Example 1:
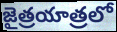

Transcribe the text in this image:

జైత్రయాత్రలో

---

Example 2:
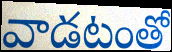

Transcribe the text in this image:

వాడటంతో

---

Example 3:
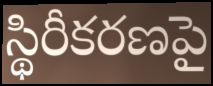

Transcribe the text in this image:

స్థిరీకరణపై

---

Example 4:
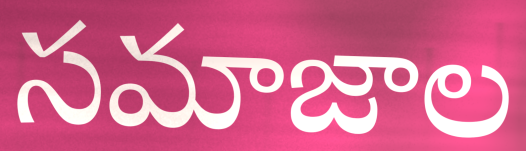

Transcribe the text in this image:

సమాజాల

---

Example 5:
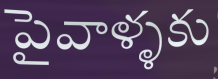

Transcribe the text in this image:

పైవాళ్ళకు